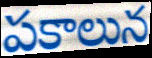
పకాలున